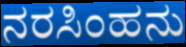
ನರಸಿಂಹನು